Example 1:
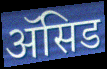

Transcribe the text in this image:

ॲसिड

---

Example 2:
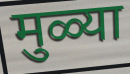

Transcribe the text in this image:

मुळ्या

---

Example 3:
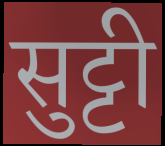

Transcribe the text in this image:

सुट्टी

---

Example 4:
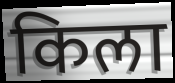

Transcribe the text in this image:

किला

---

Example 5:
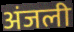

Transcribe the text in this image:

अंजली